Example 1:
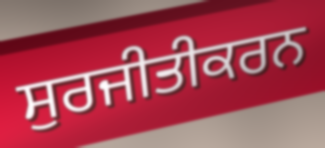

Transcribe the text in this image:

ਸੁਰਜੀਤੀਕਰਨ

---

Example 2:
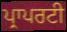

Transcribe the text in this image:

ਪ੍ਰਾਪਰਟੀ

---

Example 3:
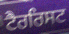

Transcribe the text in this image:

ਟੈਰਰਿਸਟ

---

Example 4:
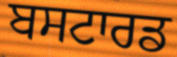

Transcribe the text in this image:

ਬਸਟਾਰਡ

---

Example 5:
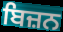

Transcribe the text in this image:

ਬਿਜ਼ਨ